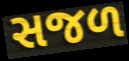
સજળ